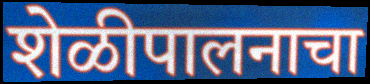
शेळीपालनाचा